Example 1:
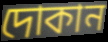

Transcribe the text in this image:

দোকান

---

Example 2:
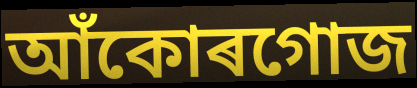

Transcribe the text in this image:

আঁকোৰগোজ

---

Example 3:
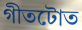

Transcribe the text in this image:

গীতটোত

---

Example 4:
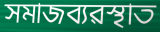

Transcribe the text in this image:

সমাজব্যৱস্থাত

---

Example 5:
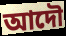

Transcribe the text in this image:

আদৌ